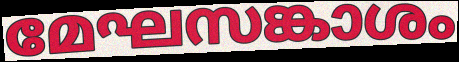
മേഘസങ്കാശം